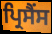
ਪ੍ਰਿਸੈਂਸ